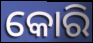
କୋରି